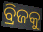
ବ୍ରିଜକୁ